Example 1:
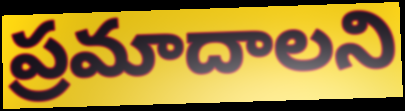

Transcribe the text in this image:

ప్రమాదాలని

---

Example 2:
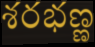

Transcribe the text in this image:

శరభణ్ణ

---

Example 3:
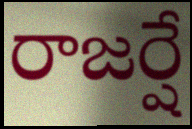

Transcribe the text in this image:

రాజర్షే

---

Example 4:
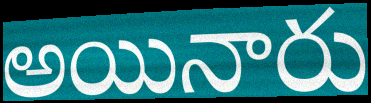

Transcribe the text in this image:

అయినారు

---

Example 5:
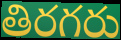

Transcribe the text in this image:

తిరగరు